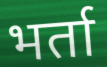
भर्ता